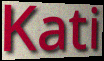
Kati